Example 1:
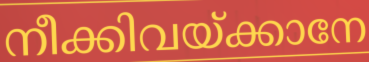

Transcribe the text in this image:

നീക്കിവയ്ക്കാനേ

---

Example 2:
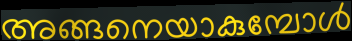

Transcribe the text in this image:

അങ്ങനെയാകുമ്പോൾ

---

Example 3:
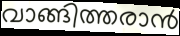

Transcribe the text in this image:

വാങ്ങിത്തരാൻ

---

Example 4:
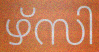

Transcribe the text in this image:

ഴ്സി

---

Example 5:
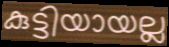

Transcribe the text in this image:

കുട്ടിയായല്ല